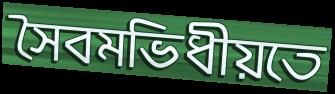
সৈবমভিধীয়তে